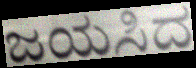
ಜಯಸಿದ